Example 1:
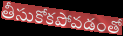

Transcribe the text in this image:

తీసుకోకపోవడంతో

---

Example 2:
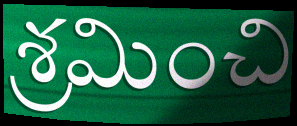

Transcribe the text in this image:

శ్రమించి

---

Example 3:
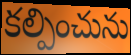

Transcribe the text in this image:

కల్పించును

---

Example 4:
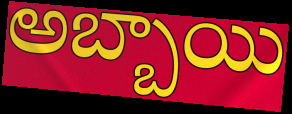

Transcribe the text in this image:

అబ్బాయి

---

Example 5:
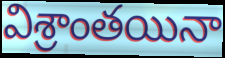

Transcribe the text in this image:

విశ్రాంతయినా